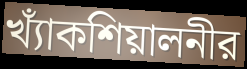
খ্যাঁকশিয়ালনীর